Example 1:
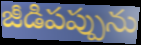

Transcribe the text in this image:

జీడిపప్పును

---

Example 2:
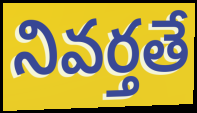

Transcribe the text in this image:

నివర్తతే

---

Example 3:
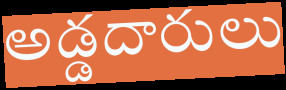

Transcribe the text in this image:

అడ్డదారులు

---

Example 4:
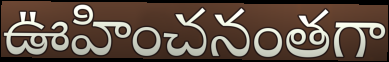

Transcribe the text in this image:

ఊహించనంతగా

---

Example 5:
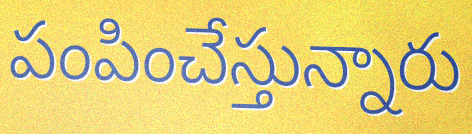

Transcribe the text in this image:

పంపించేస్తున్నారు